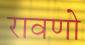
रावणो